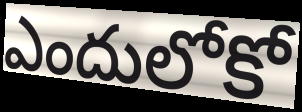
ఎందులోకో